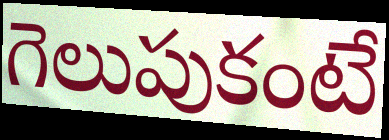
గెలుపుకంటే